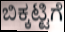
ಬಿಕ್ಕಟ್ಟಿಗೆ